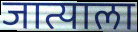
जात्याला